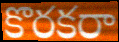
కొరకరా